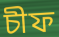
চীফ